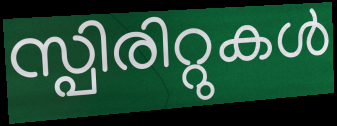
സ്പിരിറ്റുകൾ